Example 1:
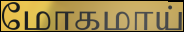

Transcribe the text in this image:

மோகமாய்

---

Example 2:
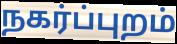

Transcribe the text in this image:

நகர்ப்புறம்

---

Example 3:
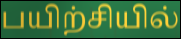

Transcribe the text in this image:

பயிற்சியில்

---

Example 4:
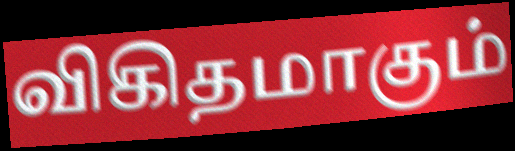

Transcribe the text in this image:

விகிதமாகும்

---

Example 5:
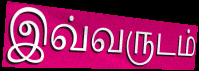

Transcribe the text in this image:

இவ்வருடம்